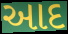
આદ